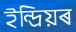
ইন্দ্ৰিয়ৰ